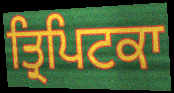
ਤ੍ਰਿਪਿਟਕਾ